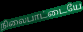
நிலைபாட்டையே